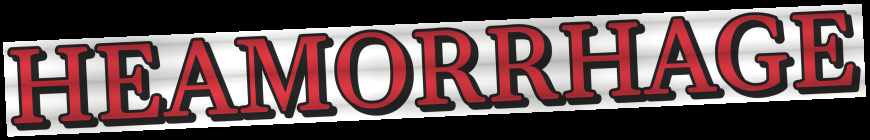
HEAMORRHAGE